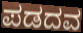
ಪಡದವ